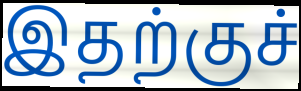
இதற்குச்